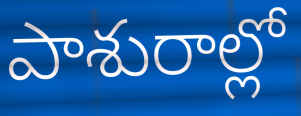
పాశురాల్లో